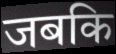
जबकि